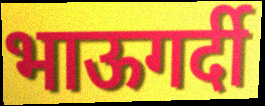
भाऊगर्दी